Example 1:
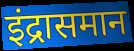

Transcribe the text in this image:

इंद्रासमान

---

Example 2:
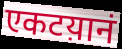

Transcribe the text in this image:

एकटय़ानं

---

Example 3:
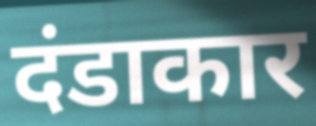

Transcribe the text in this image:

दंडाकार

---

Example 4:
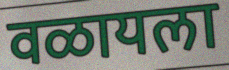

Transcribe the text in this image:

वळायला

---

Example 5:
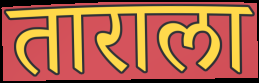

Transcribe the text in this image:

ताराला